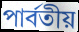
পার্বতীয়